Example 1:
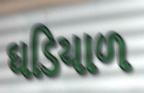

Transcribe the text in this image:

ઘડિયાળ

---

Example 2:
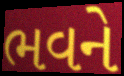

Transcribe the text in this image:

ભવને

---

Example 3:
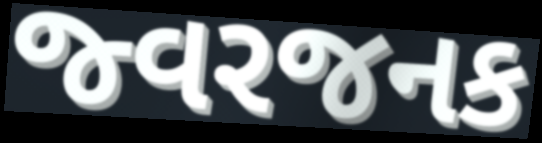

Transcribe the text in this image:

જ્વરજનક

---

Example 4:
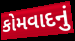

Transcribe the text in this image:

કોમવાદનું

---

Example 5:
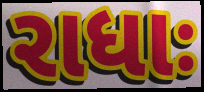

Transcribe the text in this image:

રાધાઃ